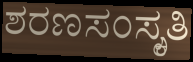
ಶರಣಸಂಸ್ಕೃತಿ